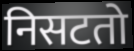
निसटतो